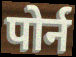
पोर्न